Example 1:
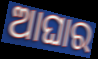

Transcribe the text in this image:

ଆଘାର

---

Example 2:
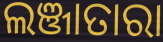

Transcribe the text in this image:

ଲଞ୍ଜାତାରା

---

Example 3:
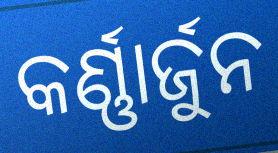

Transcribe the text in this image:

କର୍ଣ୍ଣାର୍ଜୁନ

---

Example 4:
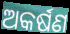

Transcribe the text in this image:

ଅକର୍ଷଣ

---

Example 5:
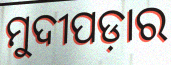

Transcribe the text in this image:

ମୁଦୀପଡ଼ାର